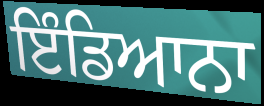
ਇੰਡਿਆਨਾ